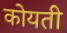
कोयती